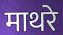
माथरे